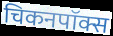
चिकनपॉक्स